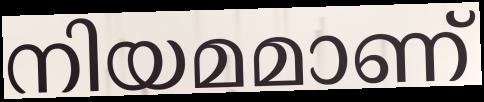
നിയമമാണ്